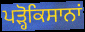
ਪੜ੍ਹੋਕਿਸਾਨਾਂ